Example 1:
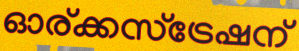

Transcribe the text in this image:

ഓര്ക്കസ്ട്രേഷന്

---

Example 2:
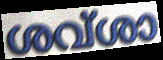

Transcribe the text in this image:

ശവ്ശാ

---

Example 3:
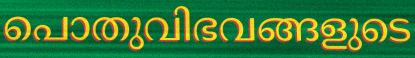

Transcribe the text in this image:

പൊതുവിഭവങ്ങളുടെ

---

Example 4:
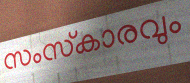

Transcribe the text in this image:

സംസ്‌കാരവും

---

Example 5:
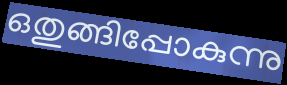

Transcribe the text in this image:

ഒതുങ്ങിപ്പോകുന്നു